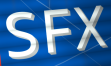
SFX